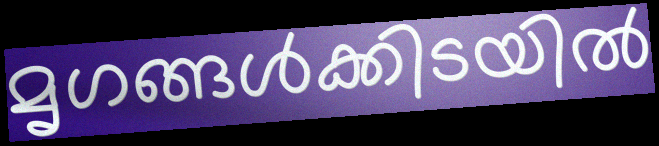
മൃഗങ്ങൾക്കിടയിൽ